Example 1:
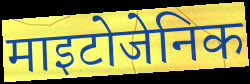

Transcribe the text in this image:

माइटोजेनिक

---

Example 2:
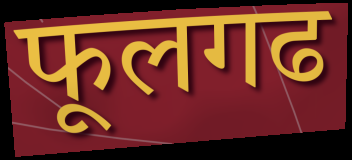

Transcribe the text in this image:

फूलगढ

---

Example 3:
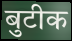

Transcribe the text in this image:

बुटीक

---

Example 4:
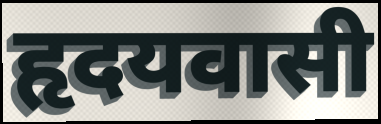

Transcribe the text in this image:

हृदयवासी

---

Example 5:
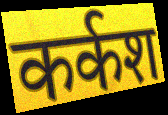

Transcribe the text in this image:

कर्कश